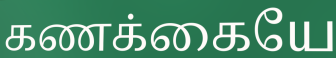
கணக்கையே